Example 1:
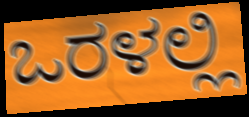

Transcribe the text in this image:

ಒರಳಲ್ಲಿ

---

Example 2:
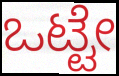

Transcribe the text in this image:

ಒಟ್ಟೇ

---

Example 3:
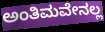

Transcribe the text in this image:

ಅಂತಿಮವೇನಲ್ಲ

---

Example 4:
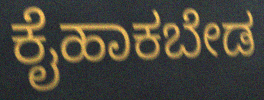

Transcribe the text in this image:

ಕೈಹಾಕಬೇಡ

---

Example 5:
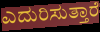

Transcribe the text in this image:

ಎದುರಿಸುತ್ತಾರೆ